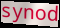
synod